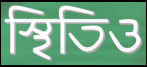
স্থিতিও